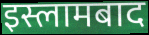
इस्लामबाद